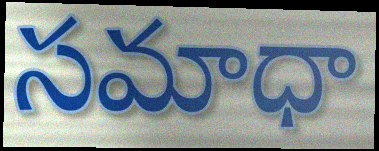
సమాధా